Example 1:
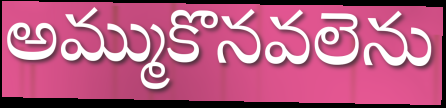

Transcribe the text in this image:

అమ్ముకొనవలెను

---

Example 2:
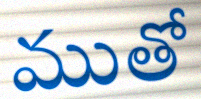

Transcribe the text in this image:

ముతో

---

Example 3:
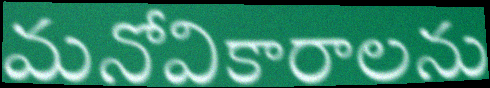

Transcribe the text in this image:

మనోవికారాలను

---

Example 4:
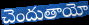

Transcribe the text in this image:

చెందుతాయో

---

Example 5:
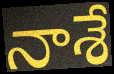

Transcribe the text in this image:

నాశే